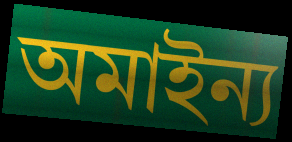
অমাইন্য